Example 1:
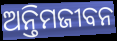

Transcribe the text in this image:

ଅନ୍ତିମଜୀବନ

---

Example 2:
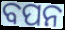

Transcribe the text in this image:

ବପନ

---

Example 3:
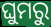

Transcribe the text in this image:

ଘୁମରୁ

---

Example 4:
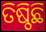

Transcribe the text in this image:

ତିଷ୍ଠିଛି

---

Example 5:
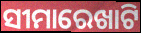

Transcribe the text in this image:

ସୀମାରେଖାଟି